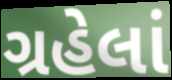
ગ્રહેલાં